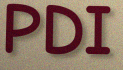
PDI